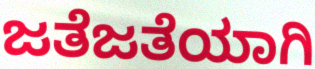
ಜತೆಜತೆಯಾಗಿ